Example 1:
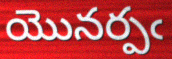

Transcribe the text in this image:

యొనర్పఁ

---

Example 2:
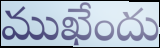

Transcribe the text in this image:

ముఖేందు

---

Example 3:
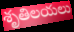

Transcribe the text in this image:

శృతిలయలు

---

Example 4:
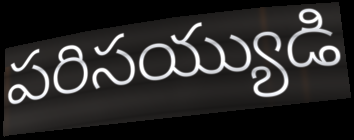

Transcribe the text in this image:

పరిసయ్యుడి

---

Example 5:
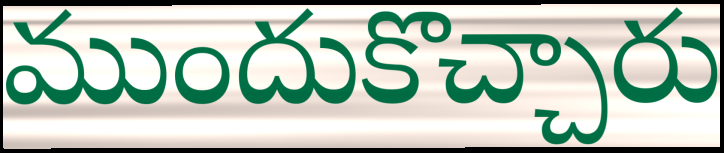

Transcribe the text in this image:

ముందుకొచ్చారు